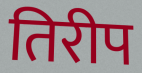
तिरीप